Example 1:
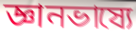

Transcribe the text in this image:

জ্ঞানভাষ্যে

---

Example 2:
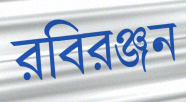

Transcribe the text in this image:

রবিরঞ্জন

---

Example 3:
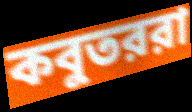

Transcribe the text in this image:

কবুতররা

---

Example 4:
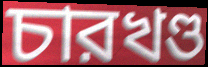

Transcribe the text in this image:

চারখণ্ড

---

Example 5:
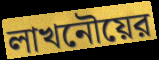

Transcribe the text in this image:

লাখনৌয়ের